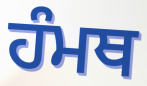
ਹੰਮਥ